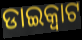
ଡାଇକ୍ଵାଟ